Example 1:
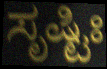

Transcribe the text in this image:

ಸೃಷ್ಟಿಃ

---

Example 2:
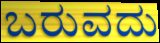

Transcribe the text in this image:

ಬರುವದು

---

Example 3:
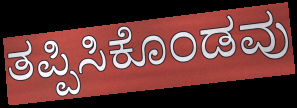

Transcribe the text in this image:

ತಪ್ಪಿಸಿಕೊಂಡವು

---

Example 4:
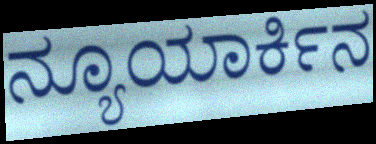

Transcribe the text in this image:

ನ್ಯೂಯಾರ್ಕಿನ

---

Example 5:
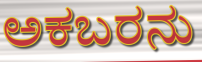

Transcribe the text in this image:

ಅಕಬರನು